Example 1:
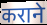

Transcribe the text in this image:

कराने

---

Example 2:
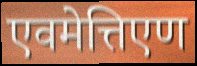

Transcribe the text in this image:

एवमेत्तिएण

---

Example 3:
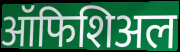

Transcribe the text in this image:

ऑफिशिअल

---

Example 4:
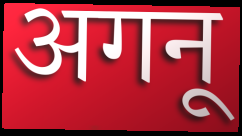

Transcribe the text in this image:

अगनू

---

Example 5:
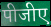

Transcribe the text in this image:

पीजीए